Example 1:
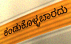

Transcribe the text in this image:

ಕಂಡುಕೊಳ್ಳಬಾರದು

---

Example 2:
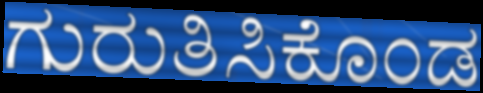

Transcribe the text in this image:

ಗುರುತಿಸಿಕೊಂಡ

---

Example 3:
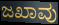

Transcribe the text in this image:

ಜಖಾವು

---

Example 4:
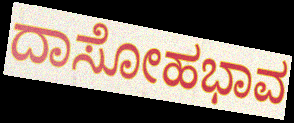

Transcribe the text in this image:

ದಾಸೋಹಭಾವ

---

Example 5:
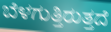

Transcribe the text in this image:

ಬೆಳಗುತ್ತಿರುತ್ತದೆ